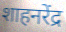
शाहनरेंद्र